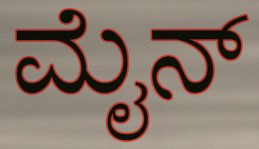
ಮೈನ್